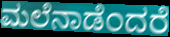
ಮಲೆನಾಡೆಂದರೆ